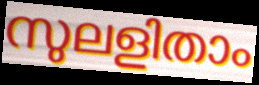
സുലളിതാം